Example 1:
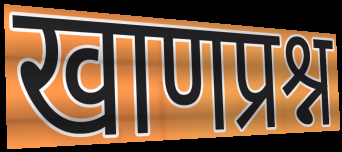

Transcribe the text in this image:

खाणप्रश्न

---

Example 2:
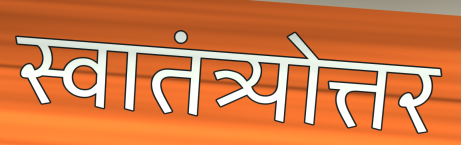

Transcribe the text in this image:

स्वातंत्र्योत्तर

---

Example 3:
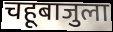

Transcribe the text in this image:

चहूबाजुला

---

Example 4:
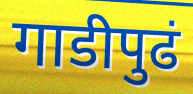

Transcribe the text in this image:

गाडीपुढं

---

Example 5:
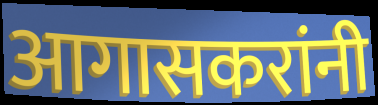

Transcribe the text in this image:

आगासकरांनी